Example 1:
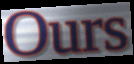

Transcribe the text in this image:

Ours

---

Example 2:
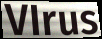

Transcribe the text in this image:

VIrus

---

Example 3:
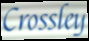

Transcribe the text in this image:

Crossley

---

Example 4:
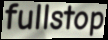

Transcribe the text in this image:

fullstop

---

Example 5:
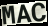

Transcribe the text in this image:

MAC